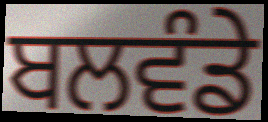
ਬਲਵੰਡੇ